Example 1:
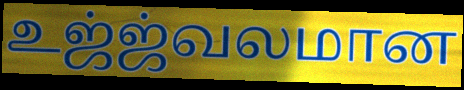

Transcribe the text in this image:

உஜ்ஜ்வலமான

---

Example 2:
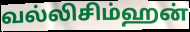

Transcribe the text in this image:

வல்லிசிம்ஹன்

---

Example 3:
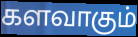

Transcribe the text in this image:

களவாகும்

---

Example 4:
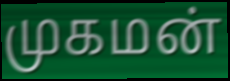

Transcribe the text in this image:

முகமன்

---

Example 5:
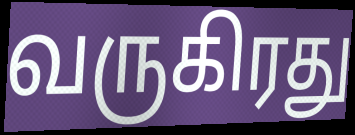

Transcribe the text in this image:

வருகிரது